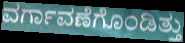
ವರ್ಗಾವಣೆಗೊಂಡಿತ್ತು